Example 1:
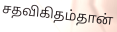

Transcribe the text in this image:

சதவிகிதம்தான்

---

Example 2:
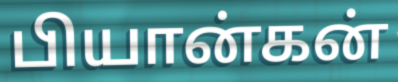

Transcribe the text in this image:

பியான்கன்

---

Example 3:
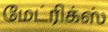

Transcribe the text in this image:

மேட்ரிக்ஸ்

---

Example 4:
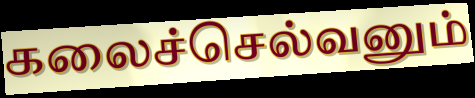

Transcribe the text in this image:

கலைச்செல்வனும்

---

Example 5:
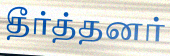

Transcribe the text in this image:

தீர்த்தனர்